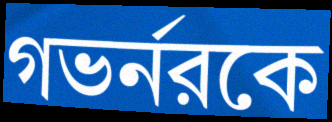
গভর্নরকে